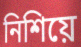
নিশিয়ে